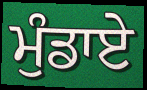
ਮੁੰਡਾਏ